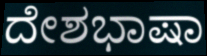
ದೇಶಭಾಷಾ